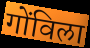
गोंविला